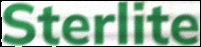
Sterlite